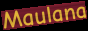
Maulana